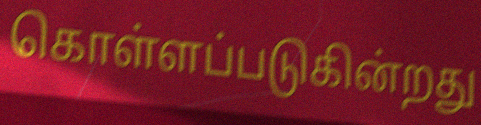
கொள்ளப்படுகின்றது